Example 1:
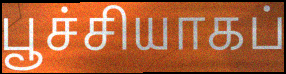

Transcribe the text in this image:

பூச்சியாகப்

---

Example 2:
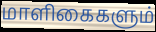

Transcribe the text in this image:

மாளிகைகளும்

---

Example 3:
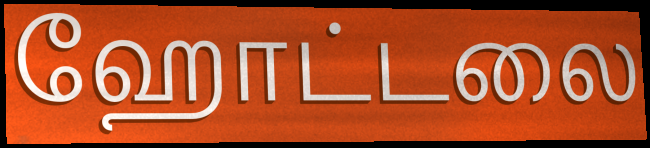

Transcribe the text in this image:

ஹோட்டலை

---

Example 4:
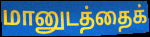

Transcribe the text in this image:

மானுடத்தைக்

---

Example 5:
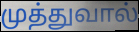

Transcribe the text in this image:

முத்துவால்